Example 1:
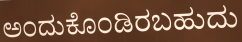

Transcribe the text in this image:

ಅಂದುಕೊಂಡಿರಬಹುದು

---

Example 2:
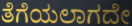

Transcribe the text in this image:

ತೆಗೆಯಲಾಗದೇ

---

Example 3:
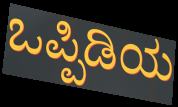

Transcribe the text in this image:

ಒಪ್ಪಿಡಿಯ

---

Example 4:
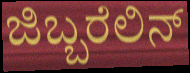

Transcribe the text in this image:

ಜಿಬ್ಬರೆಲಿನ್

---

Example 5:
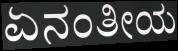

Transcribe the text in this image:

ಏನಂತೀಯ